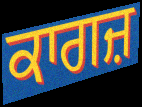
ਕਾਗਜ਼